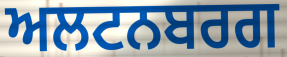
ਅਲਟਨਬਰਗ